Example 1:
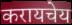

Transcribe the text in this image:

करायचेय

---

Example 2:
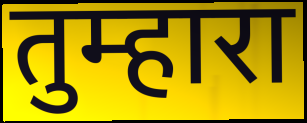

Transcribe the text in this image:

तुम्हारा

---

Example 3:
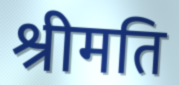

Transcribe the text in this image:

श्रीमति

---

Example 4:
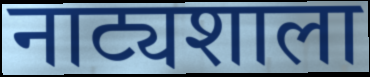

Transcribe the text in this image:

नाट्यशाला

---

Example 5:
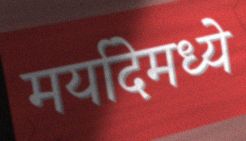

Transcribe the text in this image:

मर्यादेमध्ये